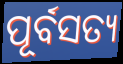
ପୂର୍ବସତ୍ୟ